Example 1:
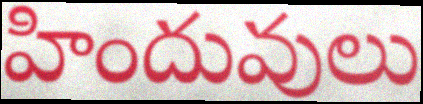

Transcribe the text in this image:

హిందువులు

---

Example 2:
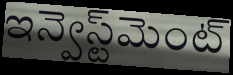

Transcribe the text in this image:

ఇన్వెస్ట్‌మెంట్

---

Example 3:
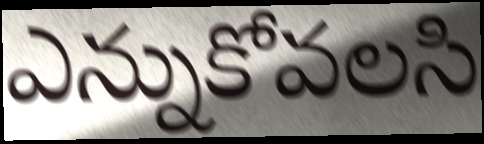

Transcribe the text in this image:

ఎన్నుకోవలసి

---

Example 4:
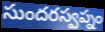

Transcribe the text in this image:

సుందరస్వప్నం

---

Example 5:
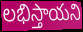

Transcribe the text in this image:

లభిస్తాయని